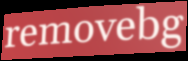
removebg